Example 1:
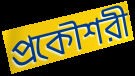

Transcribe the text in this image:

প্রকৌশরী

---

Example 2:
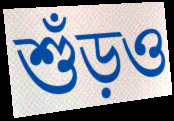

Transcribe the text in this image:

শুঁড়ও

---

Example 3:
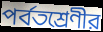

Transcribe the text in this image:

পর্বতশ্রেণীর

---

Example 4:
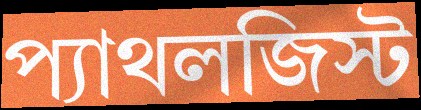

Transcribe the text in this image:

প্যাথলজিস্ট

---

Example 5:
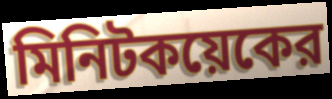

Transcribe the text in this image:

মিনিটকয়েকের